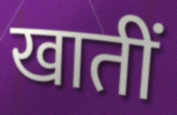
खातीं